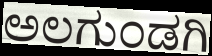
ಅಲಗುಂಡಗಿ